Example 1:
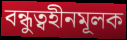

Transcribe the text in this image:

বন্ধুত্বহীনমূলক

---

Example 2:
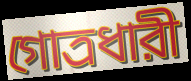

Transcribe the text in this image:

গোত্রধারী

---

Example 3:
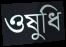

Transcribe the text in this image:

ওষুধি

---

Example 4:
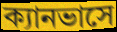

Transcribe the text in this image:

ক্যানভাসে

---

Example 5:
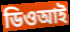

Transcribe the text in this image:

ডিওআই